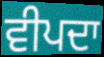
ਵੀਪਦਾ